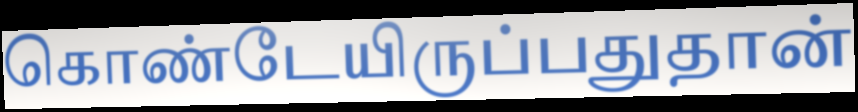
கொண்டேயிருப்பதுதான்